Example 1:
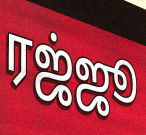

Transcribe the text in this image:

ரஜ்ஜூ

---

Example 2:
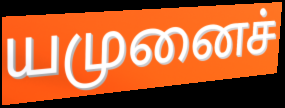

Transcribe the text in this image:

யமுனைச்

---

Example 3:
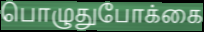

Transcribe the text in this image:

பொழுதுபோக்கை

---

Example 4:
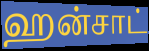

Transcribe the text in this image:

ஹன்சாட்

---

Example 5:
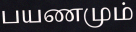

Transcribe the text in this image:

பயணமும்